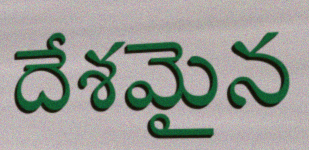
దేశమైన